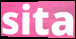
sita